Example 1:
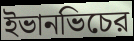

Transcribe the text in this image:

ইভানভিচের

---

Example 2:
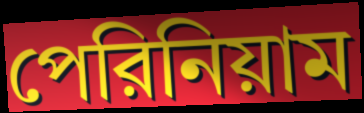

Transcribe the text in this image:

পেরিনিয়াম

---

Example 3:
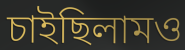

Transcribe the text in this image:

চাইছিলামও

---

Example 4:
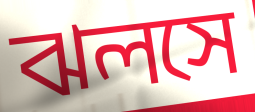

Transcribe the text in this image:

ঝলসে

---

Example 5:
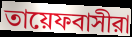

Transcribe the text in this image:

তায়েফবাসীরা